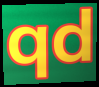
qd